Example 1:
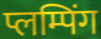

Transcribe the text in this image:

प्लम्पिंग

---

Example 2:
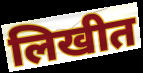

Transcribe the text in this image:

लिखीत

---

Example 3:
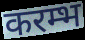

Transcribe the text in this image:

करम्भ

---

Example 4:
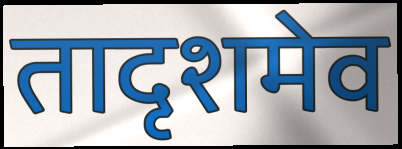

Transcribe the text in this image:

तादृशमेव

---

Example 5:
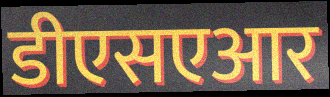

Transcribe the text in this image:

डीएसएआर